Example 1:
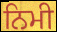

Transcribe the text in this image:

ਨਿਮੀ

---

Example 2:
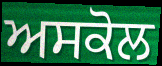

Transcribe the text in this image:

ਅਸਕੋਲ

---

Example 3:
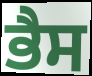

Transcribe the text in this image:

ਭੈਸ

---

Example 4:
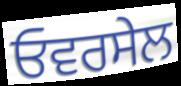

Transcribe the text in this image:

ਓਵਰਸੇਲ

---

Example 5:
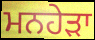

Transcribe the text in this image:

ਮਨਹੇੜਾ